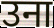
उना